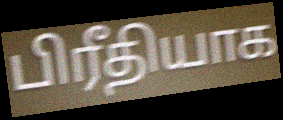
பிரீதியாக